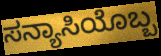
ಸನ್ಯಾಸಿಯೊಬ್ಬ